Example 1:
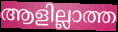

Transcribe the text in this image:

ആളില്ലാത്ത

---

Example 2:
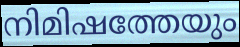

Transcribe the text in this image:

നിമിഷത്തേയും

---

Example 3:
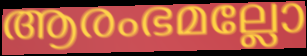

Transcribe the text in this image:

ആരംഭമല്ലോ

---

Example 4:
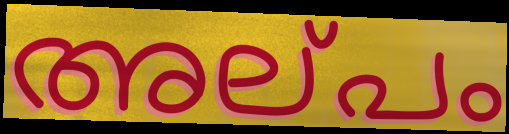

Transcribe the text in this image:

അല്‌പം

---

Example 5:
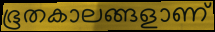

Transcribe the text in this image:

ഭൂതകാലങ്ങളാണ്